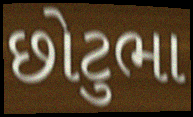
છોટુભા